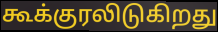
கூக்குரலிடுகிறது